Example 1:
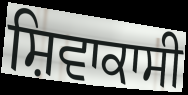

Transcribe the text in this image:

ਸ਼ਿਵਾਕਾਸੀ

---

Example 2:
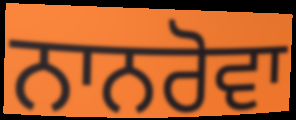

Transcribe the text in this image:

ਨਾਨਰੋਵਾ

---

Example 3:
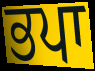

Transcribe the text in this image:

ਭਪਾ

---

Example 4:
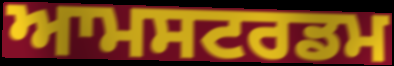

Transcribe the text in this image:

ਆਮਸਟਰਡਮ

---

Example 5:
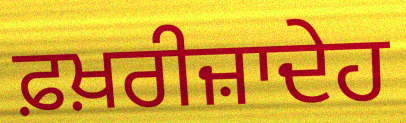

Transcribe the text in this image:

ਫ਼ਖ਼ਰੀਜ਼ਾਦੇਹ